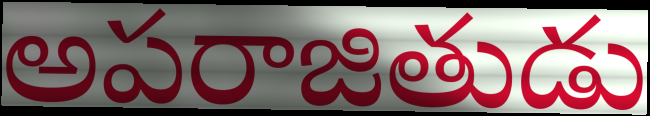
అపరాజితుడు